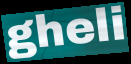
gheli